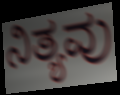
ನಿತ್ಯವು